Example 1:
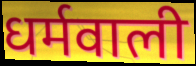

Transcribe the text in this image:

धर्मवाली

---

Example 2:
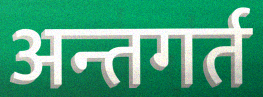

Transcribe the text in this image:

अन्तगर्त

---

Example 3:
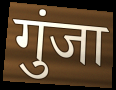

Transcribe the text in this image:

गुंजा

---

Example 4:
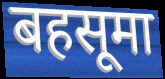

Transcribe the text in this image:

बहसूमा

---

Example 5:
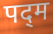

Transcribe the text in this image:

पद्‌म